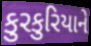
કુરકુરિયાને